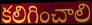
కలిగించాలి